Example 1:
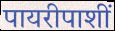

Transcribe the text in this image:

पायरीपाशीं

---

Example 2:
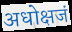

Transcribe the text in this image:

अधोक्षजं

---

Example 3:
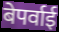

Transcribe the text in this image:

बेपर्वाई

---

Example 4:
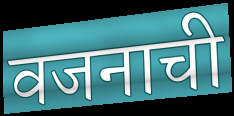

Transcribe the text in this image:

वजनाची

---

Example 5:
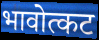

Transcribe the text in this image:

भावोत्कट